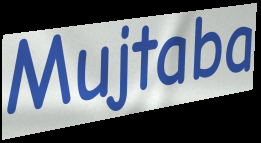
Mujtaba